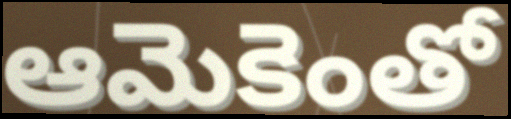
ఆమెకెంతో